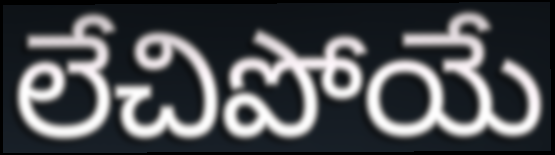
లేచిపోయే